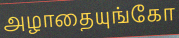
அழாதையுங்கோ